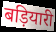
बड़ियारी